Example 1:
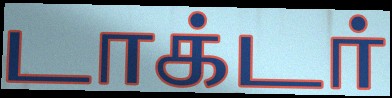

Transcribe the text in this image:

டாக்டர்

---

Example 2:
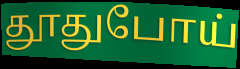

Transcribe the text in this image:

தூதுபோய்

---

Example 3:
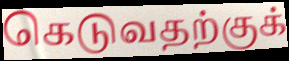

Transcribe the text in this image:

கெடுவதற்குக்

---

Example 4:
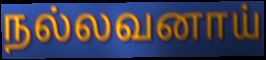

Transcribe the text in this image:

நல்லவனாய்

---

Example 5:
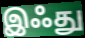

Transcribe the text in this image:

இஃது